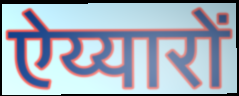
ऐय्यारों